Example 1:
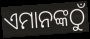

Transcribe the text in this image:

ଏମାନଙ୍କଠୁଁ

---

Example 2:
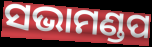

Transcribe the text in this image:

ସଭାମଣ୍ଡପ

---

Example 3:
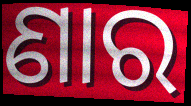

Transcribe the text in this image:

ଣାର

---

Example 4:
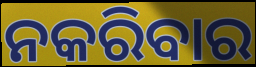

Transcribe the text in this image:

ନକରିବାର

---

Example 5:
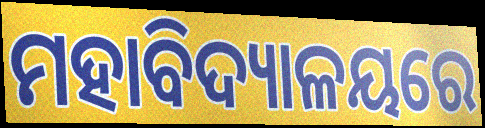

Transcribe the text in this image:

ମହାବିଦ୍ୟାଳୟରେ